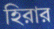
হিরার